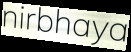
nirbhaya